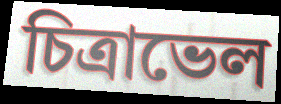
চিত্রাভেল